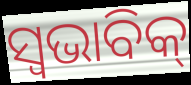
ସ୍ୱଭାବିକ୍